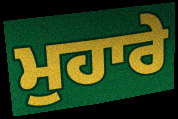
ਮੁਹਾਰੇ